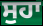
ਸੁਹਾ